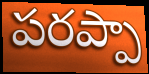
పరప్పా